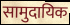
सामुदायिक